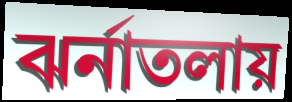
ঝর্নাতলায়